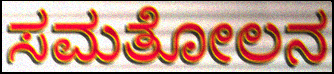
ಸಮತೋಲನ